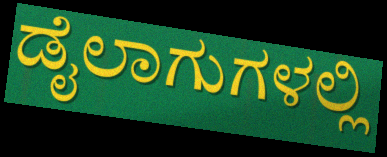
ಡೈಲಾಗುಗಳಲ್ಲಿ